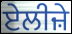
ਏਲੀਜ਼ੇ